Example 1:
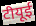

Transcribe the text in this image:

टीयूई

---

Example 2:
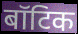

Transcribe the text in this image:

बॉटिक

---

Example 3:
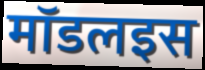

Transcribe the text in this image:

मॉडलइस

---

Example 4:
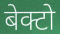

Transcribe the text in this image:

बेक्टो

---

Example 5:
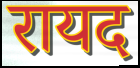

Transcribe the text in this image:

रायद